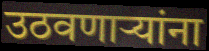
उठवणाऱ्यांना